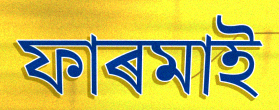
ফাৰমাই